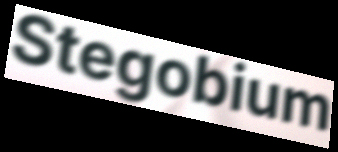
Stegobium